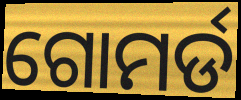
ଗୋମର୍ଡ